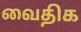
வைதிக